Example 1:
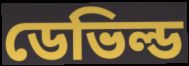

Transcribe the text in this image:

ডেভিল্ড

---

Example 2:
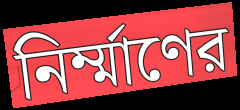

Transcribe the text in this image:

নির্ম্মাণের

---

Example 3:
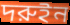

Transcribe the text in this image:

দরুইন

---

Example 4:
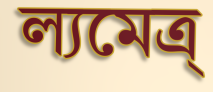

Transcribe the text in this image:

ল্যমেত্র্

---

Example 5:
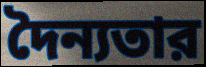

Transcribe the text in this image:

দৈন্যতার